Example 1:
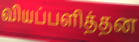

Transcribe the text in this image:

வியப்பளித்தன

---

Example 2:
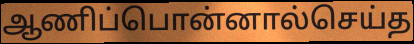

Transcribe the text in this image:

ஆணிப்பொன்னால்செய்த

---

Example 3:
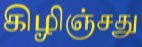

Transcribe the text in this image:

கிழிஞ்சது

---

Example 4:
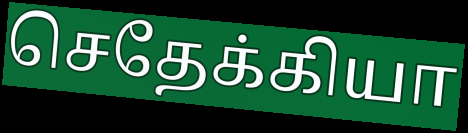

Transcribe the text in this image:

செதேக்கியா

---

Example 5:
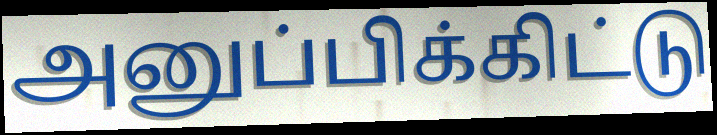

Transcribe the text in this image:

அனுப்பிக்கிட்டு